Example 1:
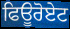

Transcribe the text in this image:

ਫਿਊਰੋਏਟ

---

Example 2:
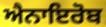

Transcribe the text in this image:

ਐਨਾਇਰੋਬ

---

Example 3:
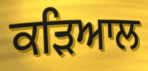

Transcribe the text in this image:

ਕੜਿਆਲ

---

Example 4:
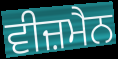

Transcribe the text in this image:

ਵੀਜ਼ਮੈਨ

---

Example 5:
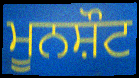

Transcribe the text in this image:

ਮੂਨਸ਼ੌਟ